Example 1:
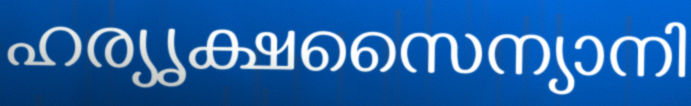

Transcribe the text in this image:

ഹര്യൃക്ഷസൈന്യാനി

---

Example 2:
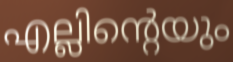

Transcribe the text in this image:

എല്ലിന്റെയും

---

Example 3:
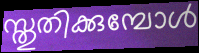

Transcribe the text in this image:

സ്തുതിക്കുമ്പോൾ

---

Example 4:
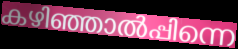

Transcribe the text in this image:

കഴിഞ്ഞാൽപ്പിന്നെ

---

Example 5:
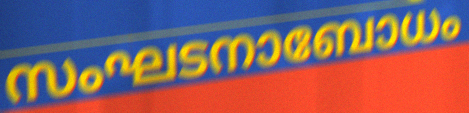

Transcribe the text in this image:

സംഘടനാബോധം